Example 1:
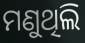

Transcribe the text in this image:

ମଣୁଥିଲି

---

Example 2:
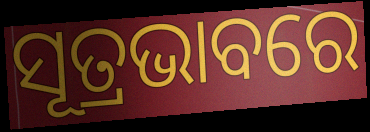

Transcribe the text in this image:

ସୂତ୍ରଭାବରେ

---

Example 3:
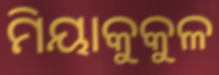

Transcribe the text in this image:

ମିୟାକୁକୁଳ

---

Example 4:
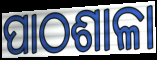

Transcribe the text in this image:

ପାଠଶାଳା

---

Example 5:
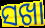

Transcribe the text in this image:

ସଖା